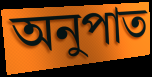
অনুপাত